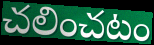
చలించటం